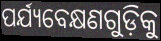
ପର୍ଯ୍ୟବେକ୍ଷଣଗୁଡ଼ିକୁ